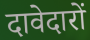
दावेदारों